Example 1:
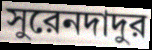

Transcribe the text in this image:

সুরেনদাদুর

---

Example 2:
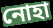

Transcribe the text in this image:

নোহা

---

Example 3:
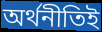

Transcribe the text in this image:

অর্থনীতিই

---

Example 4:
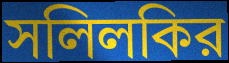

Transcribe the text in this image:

সলিলকির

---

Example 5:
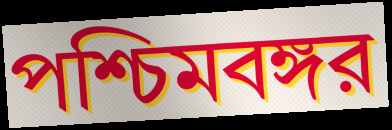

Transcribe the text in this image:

পশ্চিমবঙ্গর